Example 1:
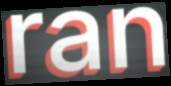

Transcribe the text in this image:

ran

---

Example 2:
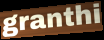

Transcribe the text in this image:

granthi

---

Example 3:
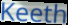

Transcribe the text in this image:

Keeth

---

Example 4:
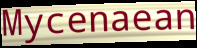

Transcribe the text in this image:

Mycenaean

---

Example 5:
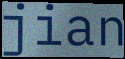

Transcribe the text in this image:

jian